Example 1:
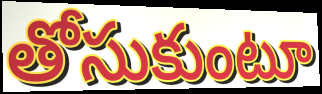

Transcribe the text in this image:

తోసుకుంటూ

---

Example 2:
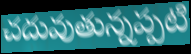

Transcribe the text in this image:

చదువుతున్నప్పటి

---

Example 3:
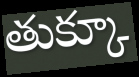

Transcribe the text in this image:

తుక్కూ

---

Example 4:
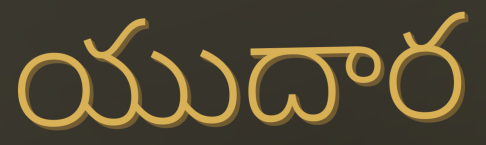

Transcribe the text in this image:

యుదార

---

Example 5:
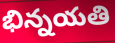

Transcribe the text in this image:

భిన్నయతి